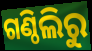
ଗଣ୍ଠିଲିରୁ